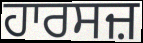
ਹਾਰਸਜ਼